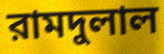
রামদুলাল